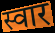
स्‍वार